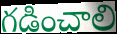
గడించాలి